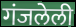
गंजलेली